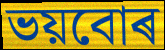
ভয়বোৰ